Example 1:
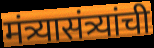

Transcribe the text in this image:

मंत्र्यासंत्र्यांची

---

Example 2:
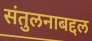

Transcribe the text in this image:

संतुलनाबद्दल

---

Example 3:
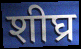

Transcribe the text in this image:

शीघ्र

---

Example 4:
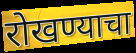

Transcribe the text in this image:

रोखण्याचा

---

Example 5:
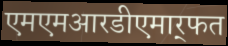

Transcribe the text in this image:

एमएमआरडीएमार्फत